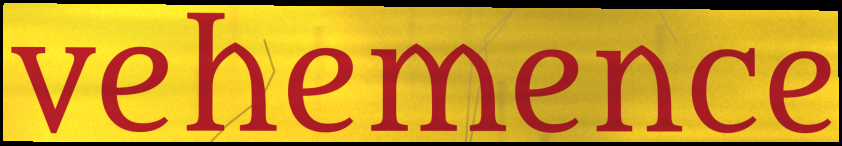
vehemence